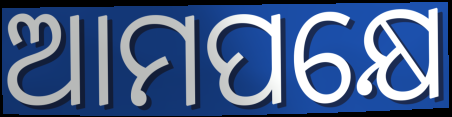
ଆମପକ୍ଷେ